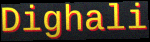
Dighali